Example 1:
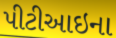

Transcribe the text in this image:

પીટીઆઇના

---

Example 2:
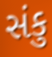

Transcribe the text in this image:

સંકુ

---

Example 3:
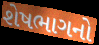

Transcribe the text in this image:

શેષભાગનો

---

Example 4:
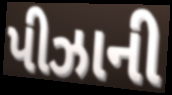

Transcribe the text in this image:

પીઝાની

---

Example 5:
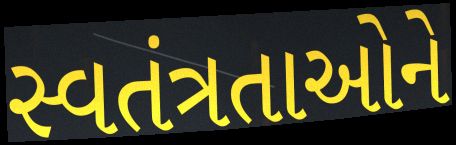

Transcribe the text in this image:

સ્વતંત્રતાઓને